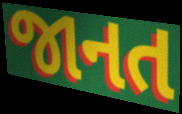
જાનત